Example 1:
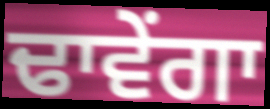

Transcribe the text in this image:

ਢਾਵੇਂਗਾ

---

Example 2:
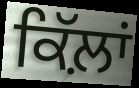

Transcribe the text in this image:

ਕਿੱਲ਼ਾਂ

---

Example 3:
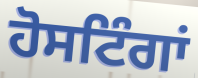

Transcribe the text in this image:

ਹੋਸਟਿੰਗਾਂ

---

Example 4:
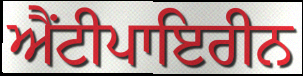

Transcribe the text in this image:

ਐਂਟੀਪਾਇਰੀਨ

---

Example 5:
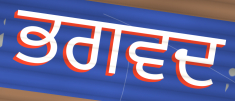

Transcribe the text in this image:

ਭਗਵਦ